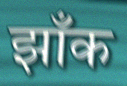
झाँक